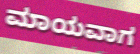
ಮಾಯವಾಗ